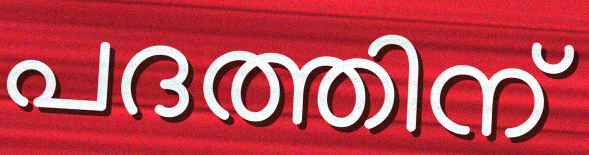
പദത്തിന്